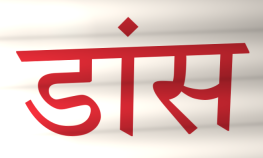
डांस